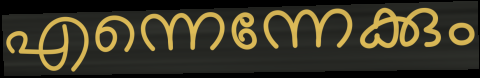
എന്നെന്നേക്കും